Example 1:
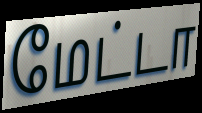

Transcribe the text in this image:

மேட்டா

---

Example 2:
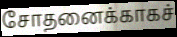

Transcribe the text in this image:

சோதனைக்காகச்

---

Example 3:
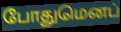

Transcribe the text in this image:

போதுமெனப்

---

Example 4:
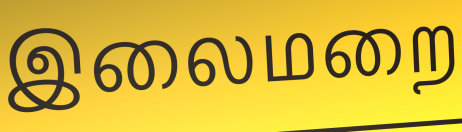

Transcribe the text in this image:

இலைமறை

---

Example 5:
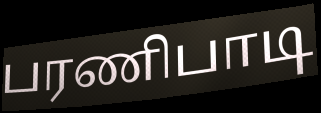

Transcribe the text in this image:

பரணிபாடி